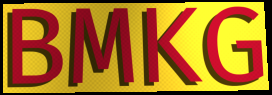
BMKG